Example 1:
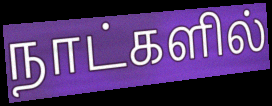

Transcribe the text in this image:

நாட்களில்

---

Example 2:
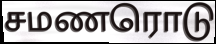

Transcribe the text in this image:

சமணரொடு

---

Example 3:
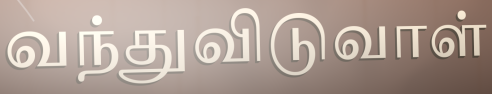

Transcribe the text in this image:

வந்துவிடுவாள்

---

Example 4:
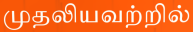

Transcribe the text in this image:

முதலியவற்றில்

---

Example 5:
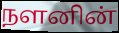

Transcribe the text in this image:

நளனின்